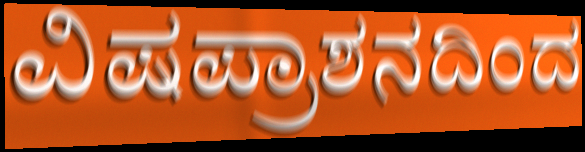
ವಿಷಪ್ರಾಶನದಿಂದ